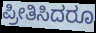
ಪ್ರೀತಿಸಿದರೂ